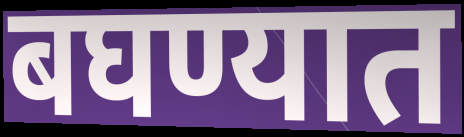
बघण्यात